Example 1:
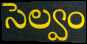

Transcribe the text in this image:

సెల్వం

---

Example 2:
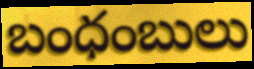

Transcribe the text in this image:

బంధంబులు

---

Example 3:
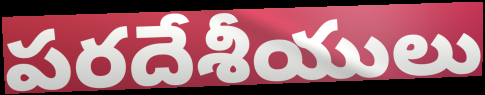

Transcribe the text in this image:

పరదేశీయులు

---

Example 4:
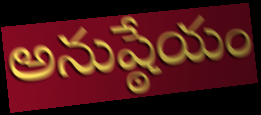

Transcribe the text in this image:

అనుష్ఠేయం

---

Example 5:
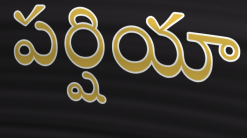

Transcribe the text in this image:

పర్షియా